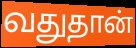
வதுதான்